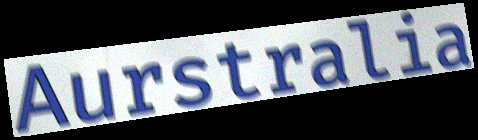
Aurstralia